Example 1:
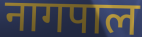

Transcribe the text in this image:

नागपाल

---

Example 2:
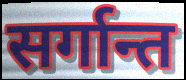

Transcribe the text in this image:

सर्गान्त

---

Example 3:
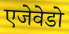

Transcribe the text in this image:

एजेवेडो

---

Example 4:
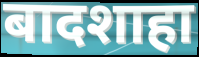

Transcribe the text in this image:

बादशाहा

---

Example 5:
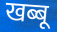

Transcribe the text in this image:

खब्‍बू